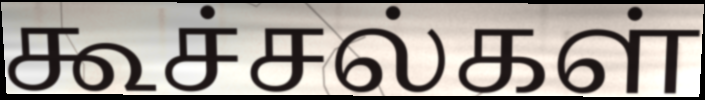
கூச்சல்கள்